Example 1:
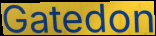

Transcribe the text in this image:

Gatedon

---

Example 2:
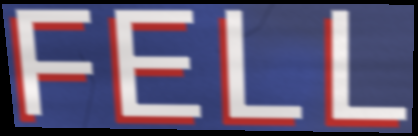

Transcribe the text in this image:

FELL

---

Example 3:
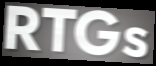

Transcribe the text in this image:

RTGs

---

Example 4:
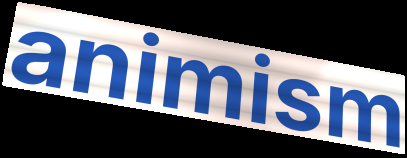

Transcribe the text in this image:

animism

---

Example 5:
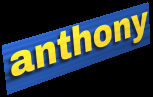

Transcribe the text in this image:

anthony